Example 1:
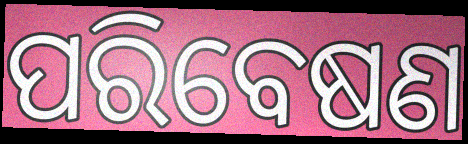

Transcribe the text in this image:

ପରିବେଷଣ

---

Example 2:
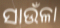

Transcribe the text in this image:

ସାଉଁଳା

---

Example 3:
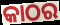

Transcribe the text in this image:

କାଠର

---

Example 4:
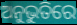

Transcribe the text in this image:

ଅନୁଭୁତିରେ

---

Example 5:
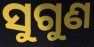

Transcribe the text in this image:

ସୁଗୁଣ